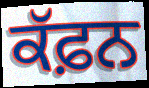
ਕੱਫ਼ਨ